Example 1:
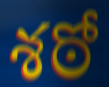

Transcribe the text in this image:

శఠో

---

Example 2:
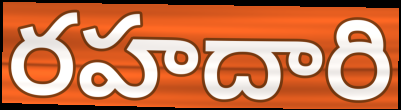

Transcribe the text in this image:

రహదారి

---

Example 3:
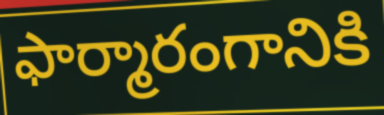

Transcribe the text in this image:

ఫార్మారంగానికి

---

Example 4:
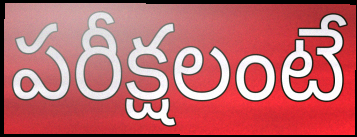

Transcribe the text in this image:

పరీక్షలంటే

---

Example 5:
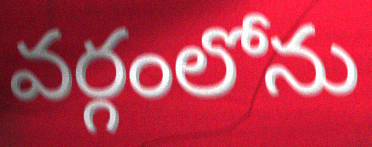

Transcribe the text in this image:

వర్గంలోను